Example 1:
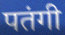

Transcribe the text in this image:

पतंगी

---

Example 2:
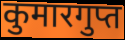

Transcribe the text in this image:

कुमारगुप्त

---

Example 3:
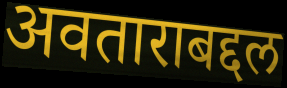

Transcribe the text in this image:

अवताराबद्दल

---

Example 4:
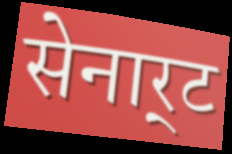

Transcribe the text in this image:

सेनार्ट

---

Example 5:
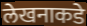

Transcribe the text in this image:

लेखनाकडे